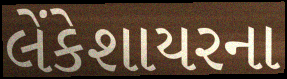
લેંકેશાયરના